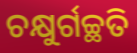
ଚକ୍ଷୁର୍ଗଚ୍ଛତି